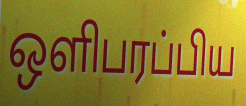
ஒளிபரப்பிய